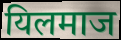
यिलमाज